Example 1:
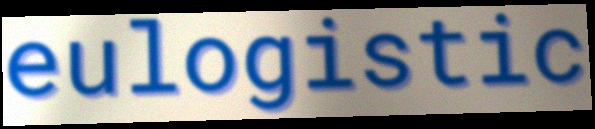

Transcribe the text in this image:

eulogistic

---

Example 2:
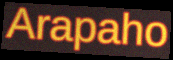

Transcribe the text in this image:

Arapaho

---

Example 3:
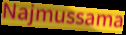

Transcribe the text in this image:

Najmussama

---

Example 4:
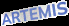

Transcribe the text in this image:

ARTEMIS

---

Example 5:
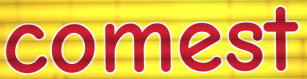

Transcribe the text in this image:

comest